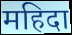
महिदा